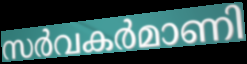
സർവകർമാണി